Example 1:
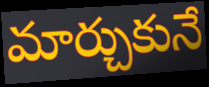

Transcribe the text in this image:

మార్చుకునే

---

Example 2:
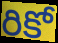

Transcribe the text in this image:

రికో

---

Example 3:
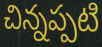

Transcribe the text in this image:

చిన్నప్పటి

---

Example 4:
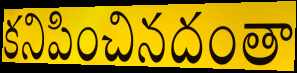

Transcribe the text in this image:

కనిపించినదంతా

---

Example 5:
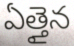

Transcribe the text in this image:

ఏత్తైన